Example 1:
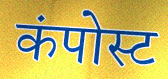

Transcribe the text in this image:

कंपोस्ट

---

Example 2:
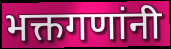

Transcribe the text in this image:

भक्तगणांनी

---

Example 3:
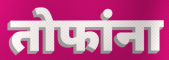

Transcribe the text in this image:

तोफांना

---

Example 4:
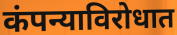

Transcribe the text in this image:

कंपन्याविरोधात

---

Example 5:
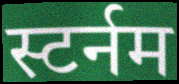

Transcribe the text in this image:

स्टर्नम